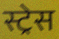
स्ट्रेस